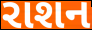
રાશન